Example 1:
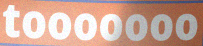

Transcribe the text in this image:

tooooooo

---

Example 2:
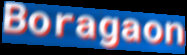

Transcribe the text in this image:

Boragaon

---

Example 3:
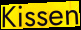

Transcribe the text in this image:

Kissen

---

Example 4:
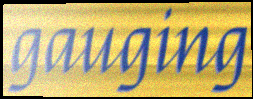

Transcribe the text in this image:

gauging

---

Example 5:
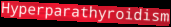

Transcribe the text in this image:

Hyperparathyroidism